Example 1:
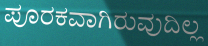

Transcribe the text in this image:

ಪೂರಕವಾಗಿರುವುದಿಲ್ಲ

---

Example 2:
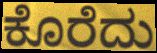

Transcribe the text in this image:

ಕೊರೆದು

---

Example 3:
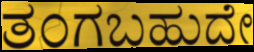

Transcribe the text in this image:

ತಂಗಬಹುದೇ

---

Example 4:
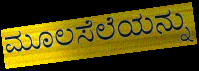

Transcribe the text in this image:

ಮೂಲಸೆಲೆಯನ್ನು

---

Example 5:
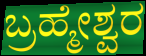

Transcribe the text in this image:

ಬ್ರಹ್ಮೇಶ್ವರ